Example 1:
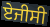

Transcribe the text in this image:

ਏਜੀਸੀ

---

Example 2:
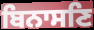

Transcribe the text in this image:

ਬਿਨਾਸਣਿ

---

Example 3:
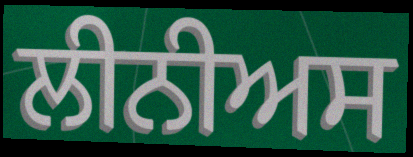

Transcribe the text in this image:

ਲੀਨੀਅਸ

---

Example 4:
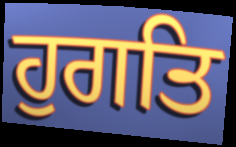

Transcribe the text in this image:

ਹੁਗਤਿ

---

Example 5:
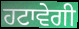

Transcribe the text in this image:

ਹਟਾਵੇਗੀ